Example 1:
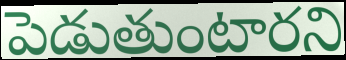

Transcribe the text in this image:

పెడుతుంటారని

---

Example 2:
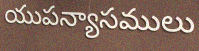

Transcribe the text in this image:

యుపన్యాసములు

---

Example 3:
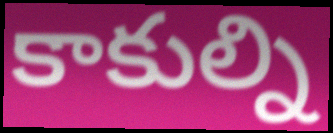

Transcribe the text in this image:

కాకుల్ని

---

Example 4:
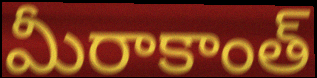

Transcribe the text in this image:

మీరాకాంత్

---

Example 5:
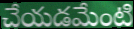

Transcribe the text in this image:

చేయడమేంటి